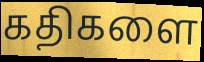
கதிகளை